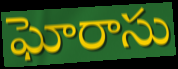
ఘోరాసు